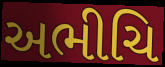
અભીચિ